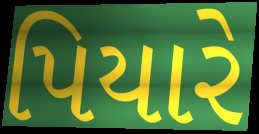
પિયારે